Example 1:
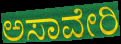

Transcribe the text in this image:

ಅಸಾವೇರಿ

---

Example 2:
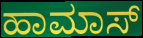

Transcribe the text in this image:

ಹಾಮಾಸ್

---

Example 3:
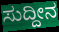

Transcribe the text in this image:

ಸುದ್ದೀನ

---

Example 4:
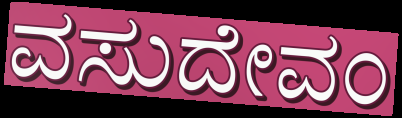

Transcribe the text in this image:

ವಸುದೇವಂ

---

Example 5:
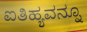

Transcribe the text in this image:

ಐತಿಹ್ಯವನ್ನೂ